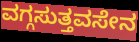
ವಗ್ಗಸುತ್ತವಸೇನ